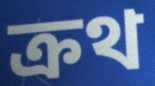
ক্রথ